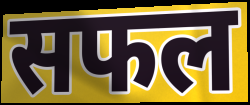
सफल